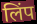
लिंप